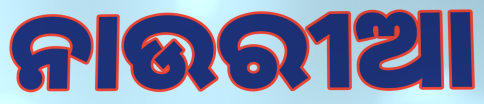
ନାଉରୀଆ